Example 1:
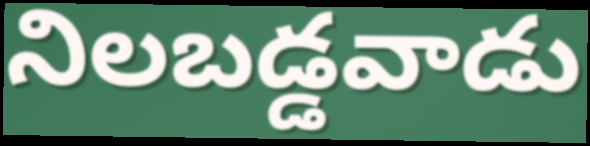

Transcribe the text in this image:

నిలబడ్డవాడు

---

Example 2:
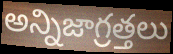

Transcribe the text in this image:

అన్నిజాగ్రత్తలు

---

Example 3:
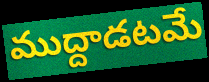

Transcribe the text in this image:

ముద్దాడటమే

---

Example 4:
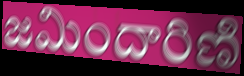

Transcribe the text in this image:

జమిందారిణి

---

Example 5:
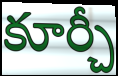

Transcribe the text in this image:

కూర్చీ